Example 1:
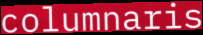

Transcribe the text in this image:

columnaris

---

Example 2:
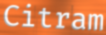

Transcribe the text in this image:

Citram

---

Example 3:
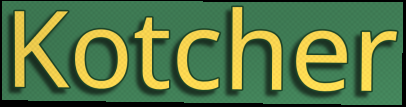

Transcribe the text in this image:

Kotcher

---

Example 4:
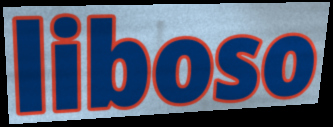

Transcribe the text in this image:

liboso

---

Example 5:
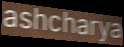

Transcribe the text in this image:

ashcharya